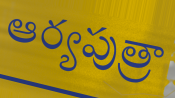
ఆర్యపుత్రా